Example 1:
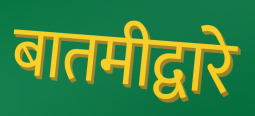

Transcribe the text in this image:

बातमीद्वारे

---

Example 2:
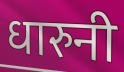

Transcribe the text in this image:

धारुनी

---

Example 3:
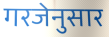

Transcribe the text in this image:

गरजेनुसार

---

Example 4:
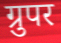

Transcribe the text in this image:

ग्रुपर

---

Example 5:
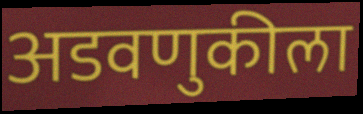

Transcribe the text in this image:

अडवणुकीला